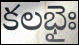
కలభైః